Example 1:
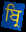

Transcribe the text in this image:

ਬ੍ਰਿ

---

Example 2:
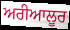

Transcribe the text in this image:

ਅਰੀਆਲੂਰ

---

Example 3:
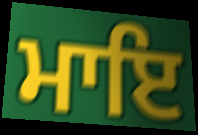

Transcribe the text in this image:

ਮਾਇ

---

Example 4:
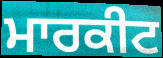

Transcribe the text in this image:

ਮਾਰਕੀਟ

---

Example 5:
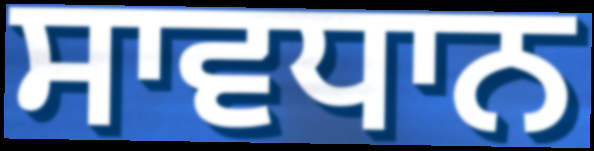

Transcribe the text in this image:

ਸਾਵਧਾਨ